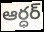
ఆర్ధర్